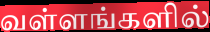
வள்ளங்களில்